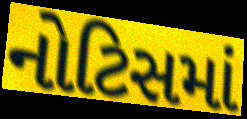
નોટિસમાં